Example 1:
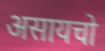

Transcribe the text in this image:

असायचो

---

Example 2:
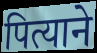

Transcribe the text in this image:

पित्याने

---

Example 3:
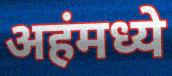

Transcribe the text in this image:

अहंमध्ये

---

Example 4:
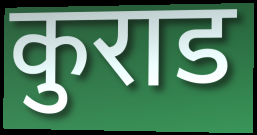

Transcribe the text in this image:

कुराड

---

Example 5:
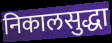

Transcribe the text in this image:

निकालसुद्धा